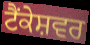
ਟੈਂਕੇਸ਼ਵਰ